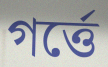
গর্ত্তে